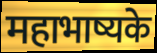
महाभाष्यके